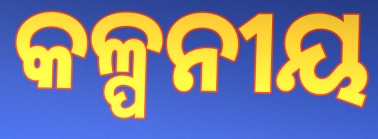
କଳ୍ପନୀୟ